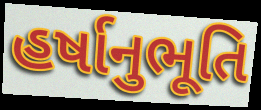
હર્ષાનુભૂતિ